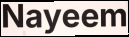
Nayeem